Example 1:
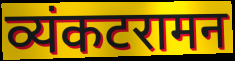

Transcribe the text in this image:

व्यंकटरामन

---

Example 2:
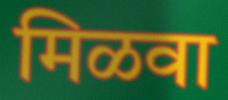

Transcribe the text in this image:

मिळवा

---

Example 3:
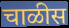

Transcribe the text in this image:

चाळीस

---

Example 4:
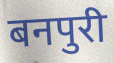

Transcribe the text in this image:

बनपुरी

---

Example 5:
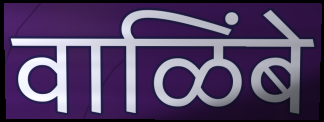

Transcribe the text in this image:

वाळिंबे